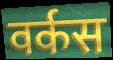
वर्कस